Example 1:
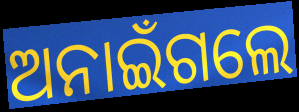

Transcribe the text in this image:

ଅନାଇଁଗଲେ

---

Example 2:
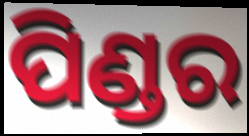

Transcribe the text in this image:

ପିଣ୍ଡର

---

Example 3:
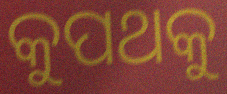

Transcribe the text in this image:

କୁପଥକୁ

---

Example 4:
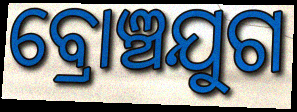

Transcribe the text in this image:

ବ୍ରୋଞ୍ଚଯୁଗ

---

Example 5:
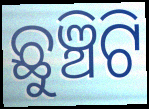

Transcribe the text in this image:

ଛୁଞ୍ଚିଟି